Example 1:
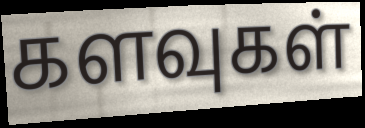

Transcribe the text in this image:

களவுகள்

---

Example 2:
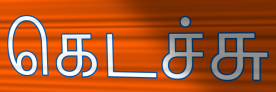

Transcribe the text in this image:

கெடச்சு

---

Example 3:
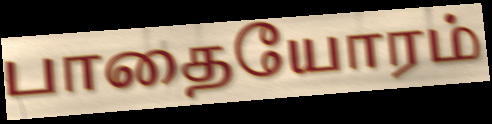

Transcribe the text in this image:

பாதையோரம்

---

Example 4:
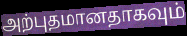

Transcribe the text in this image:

அற்புதமானதாகவும்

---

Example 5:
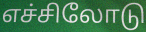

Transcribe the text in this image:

எச்சிலோடு